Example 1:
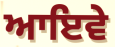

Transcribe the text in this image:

ਆਇਵੇ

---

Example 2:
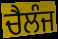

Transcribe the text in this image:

ਚੈਲੰਜ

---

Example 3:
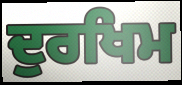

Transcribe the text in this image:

ਦੁਰਖਿਮ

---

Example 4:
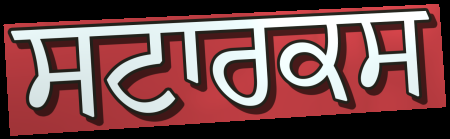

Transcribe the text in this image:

ਸਟਾਰਕਸ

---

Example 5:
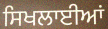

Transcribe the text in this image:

ਸਿਖਲਾਈਆਂ